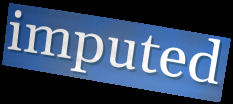
imputed